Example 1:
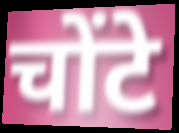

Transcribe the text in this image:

चोंटे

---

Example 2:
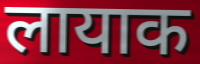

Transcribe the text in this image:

लायाक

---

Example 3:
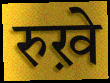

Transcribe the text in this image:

रुख़े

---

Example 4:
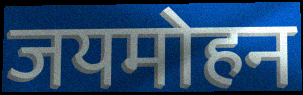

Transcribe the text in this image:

जयमोहन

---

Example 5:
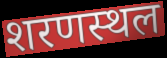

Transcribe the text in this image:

शरणस्थल